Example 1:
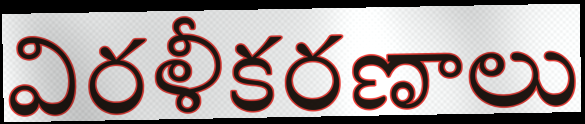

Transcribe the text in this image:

విరళీకరణాలు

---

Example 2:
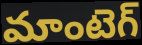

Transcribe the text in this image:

మాంటెగ్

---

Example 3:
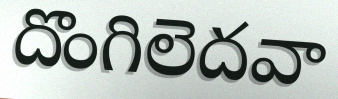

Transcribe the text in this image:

దొంగిలెదవా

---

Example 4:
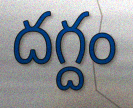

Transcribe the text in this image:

దగ్దం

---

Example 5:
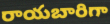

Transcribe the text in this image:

రాయబారిగా